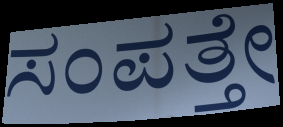
ಸಂಪತ್ತೇ